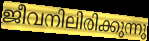
ജീവനിലിരിക്കുന്നു